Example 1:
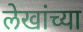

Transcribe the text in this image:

लेखांच्या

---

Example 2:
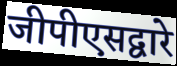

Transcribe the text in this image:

जीपीएसद्वारे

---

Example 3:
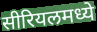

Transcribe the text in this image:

सीरियलमध्ये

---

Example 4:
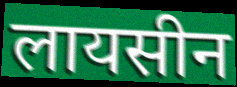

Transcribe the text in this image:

लायसीन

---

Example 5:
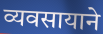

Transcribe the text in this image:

व्यवसायाने